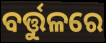
ବର୍ତ୍ତୁଳରେ